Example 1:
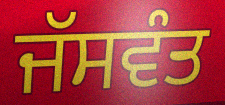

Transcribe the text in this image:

ਜੱਸਵੰਤ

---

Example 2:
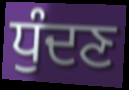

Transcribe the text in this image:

ਧੁੰਦਣ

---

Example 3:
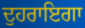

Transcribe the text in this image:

ਦੁਹਰਾਇਗਾ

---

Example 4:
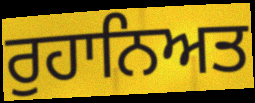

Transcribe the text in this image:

ਰੁਹਾਨਿਅਤ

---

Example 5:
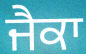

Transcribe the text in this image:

ਜੈਕਾ